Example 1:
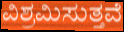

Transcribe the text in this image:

ವಿಶ್ರಮಿಸುತ್ತವೆ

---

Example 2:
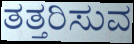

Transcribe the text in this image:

ತತ್ತರಿಸುವ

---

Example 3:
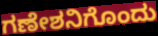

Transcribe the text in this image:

ಗಣೇಶನಿಗೊಂದು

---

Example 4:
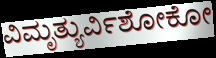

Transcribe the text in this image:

ವಿಮೃತ್ಯುರ್ವಿಶೋಕೋ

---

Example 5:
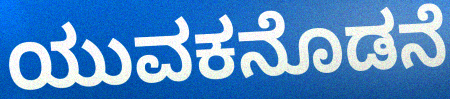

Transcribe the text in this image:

ಯುವಕನೊಡನೆ